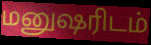
மனுஷரிடம்